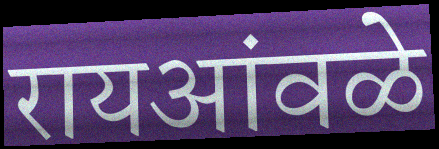
रायआंवळे